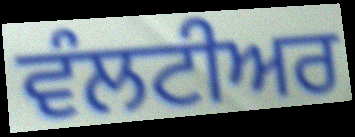
ਵੰਲਟੀਅਰ